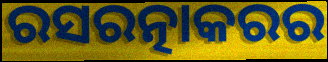
ରସରତ୍ନାକରର